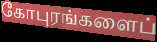
கோபுரங்களைப்